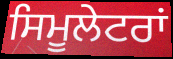
ਸਿਮੂਲੇਟਰਾਂ